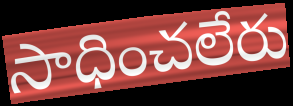
సాధించలేరు